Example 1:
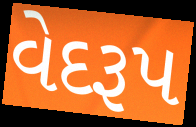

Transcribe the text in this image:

વેદરૂપ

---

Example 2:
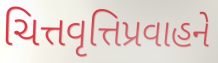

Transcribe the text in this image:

ચિત્તવૃત્તિપ્રવાહને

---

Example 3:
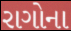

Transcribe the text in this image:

રાગોના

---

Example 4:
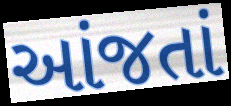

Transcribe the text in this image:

આંજતાં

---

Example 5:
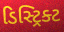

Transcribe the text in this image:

ડિસ્ટ્રિક્ટ